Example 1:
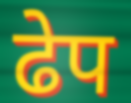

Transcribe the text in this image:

ढेप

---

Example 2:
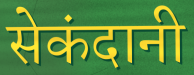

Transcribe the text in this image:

सेकंदानी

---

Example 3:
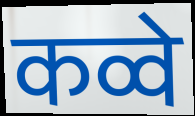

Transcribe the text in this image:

कव्वे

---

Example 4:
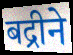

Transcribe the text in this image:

बद्रीने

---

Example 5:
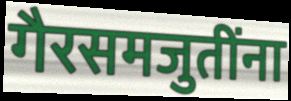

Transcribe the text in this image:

गैरसमजुतींना